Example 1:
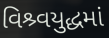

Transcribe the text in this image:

વિશ્ર્વયુદ્ધમાં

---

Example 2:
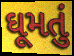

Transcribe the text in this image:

ઘૂમતું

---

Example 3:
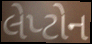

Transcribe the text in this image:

લેપ્ટોન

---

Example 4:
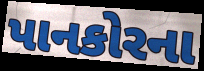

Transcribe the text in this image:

પાનકોરના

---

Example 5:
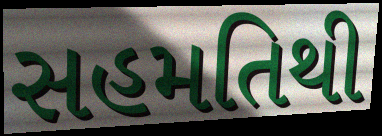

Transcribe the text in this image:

સહમતિથી